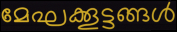
മേഘക്കൂട്ടങ്ങൾ